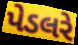
પેડલરે